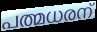
പത്മധരന്